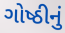
ગોષ્ઠીનું